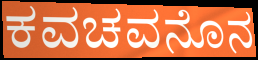
ಕವಚವನೊನ